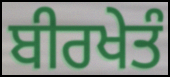
ਬੀਰਖੇਤੰ